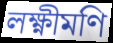
লক্ষ্ণীমণি